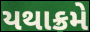
યથાક્રમે